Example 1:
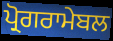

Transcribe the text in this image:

ਪ੍ਰੋਗਰਾਮੇਬਲ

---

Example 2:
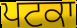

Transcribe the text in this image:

ਪਟਕਾ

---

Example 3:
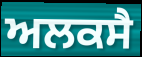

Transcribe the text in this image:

ਅਲਕਸੈ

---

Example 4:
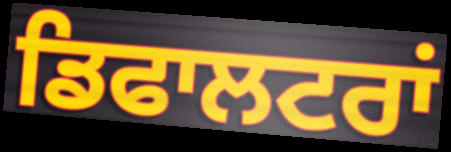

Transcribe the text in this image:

ਡਿਫਾਲਟਰਾਂ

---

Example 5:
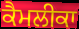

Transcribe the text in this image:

ਕੈਮਲੀਕਾ